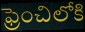
ఫ్రెంచిలోకి